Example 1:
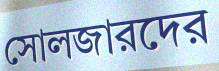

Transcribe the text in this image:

সোলজারদের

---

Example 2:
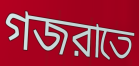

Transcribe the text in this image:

গজরাতে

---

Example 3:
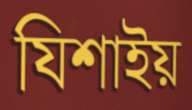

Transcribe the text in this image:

যিশাইয়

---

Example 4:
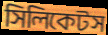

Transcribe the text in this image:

সিলিকেটস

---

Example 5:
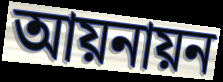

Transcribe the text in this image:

আয়নায়ন